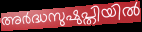
അർദ്ധസുഷുപ്തിയിൽ